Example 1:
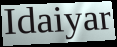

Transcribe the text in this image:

Idaiyar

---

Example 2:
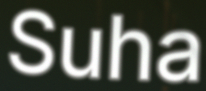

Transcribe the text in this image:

Suha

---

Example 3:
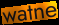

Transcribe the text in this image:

watne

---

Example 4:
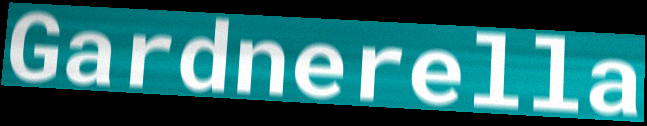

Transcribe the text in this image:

Gardnerella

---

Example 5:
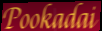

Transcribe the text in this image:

Pookadai